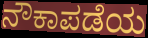
ನೌಕಾಪಡೆಯ